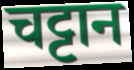
चट्टान